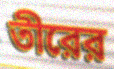
তীরের